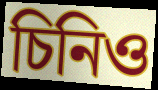
চিনিও